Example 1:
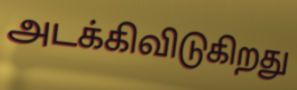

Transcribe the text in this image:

அடக்கிவிடுகிறது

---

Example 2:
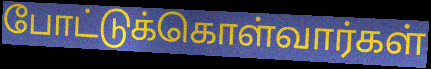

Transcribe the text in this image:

போட்டுக்கொள்வார்கள்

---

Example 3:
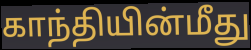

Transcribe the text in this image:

காந்தியின்மீது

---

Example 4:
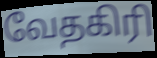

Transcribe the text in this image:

வேதகிரி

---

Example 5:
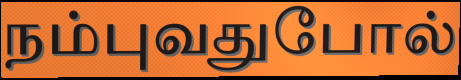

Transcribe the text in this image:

நம்புவதுபோல்